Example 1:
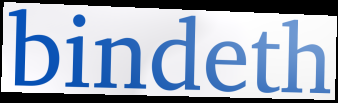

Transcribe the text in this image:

bindeth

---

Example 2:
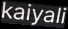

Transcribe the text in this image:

kaiyali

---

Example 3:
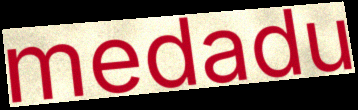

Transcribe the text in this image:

medadu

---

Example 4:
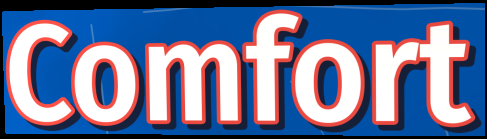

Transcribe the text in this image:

Comfort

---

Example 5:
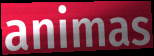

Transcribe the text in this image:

animas